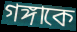
গঙ্গাকে